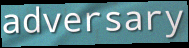
adversary